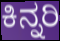
ಕಿನ್ನರಿ